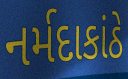
નર્મદાકાંઠે